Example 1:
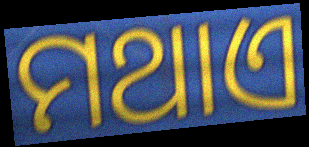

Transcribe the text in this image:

ମଥାଏ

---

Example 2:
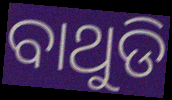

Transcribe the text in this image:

ବାଥୁଡି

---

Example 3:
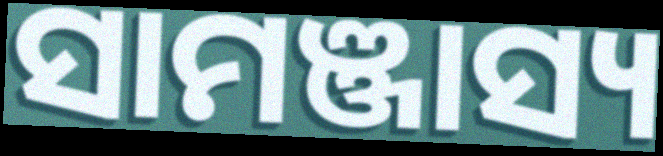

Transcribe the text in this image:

ସାମଞ୍ଜାସ୍ୟ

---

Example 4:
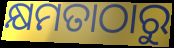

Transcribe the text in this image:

କ୍ଷମତାଠାରୁ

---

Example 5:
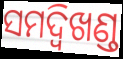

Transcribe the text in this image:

ସମଦ୍ବିଖଣ୍ଡ